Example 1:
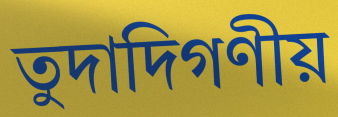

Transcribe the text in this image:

তুদাদিগণীয়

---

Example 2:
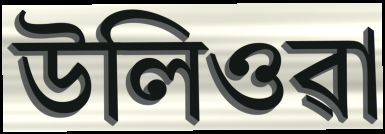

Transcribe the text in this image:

উলিওৱা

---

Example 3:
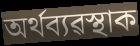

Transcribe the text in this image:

অৰ্থব্যৱস্থাক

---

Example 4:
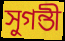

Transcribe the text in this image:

সুগন্তী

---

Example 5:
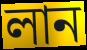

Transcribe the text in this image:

লান